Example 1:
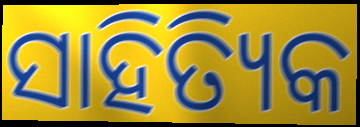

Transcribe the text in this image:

ସାହିତ୍ୟିକ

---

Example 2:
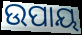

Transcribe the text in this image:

ଉପାୟ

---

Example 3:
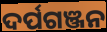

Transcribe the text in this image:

ଦର୍ପଗଞ୍ଜନ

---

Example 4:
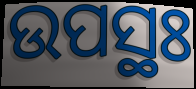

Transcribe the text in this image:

ଉପସ୍ଥଃ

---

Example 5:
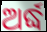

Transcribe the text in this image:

ଅର୍ଦ୍ଧ